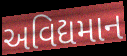
અવિદ્યમાન